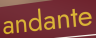
andante